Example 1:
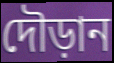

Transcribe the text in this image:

দৌড়ান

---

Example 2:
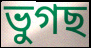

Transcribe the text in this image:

ভুগছ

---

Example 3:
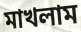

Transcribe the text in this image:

মাখলাম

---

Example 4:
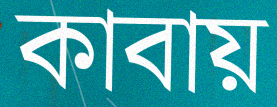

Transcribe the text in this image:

কাবায়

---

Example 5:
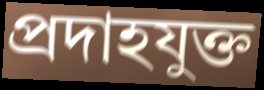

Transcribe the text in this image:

প্রদাহযুক্ত